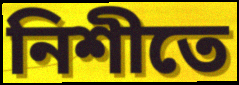
নিশীতে